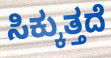
ಸಿಕ್ಕುತ್ತದೆ